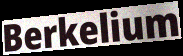
Berkelium